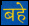
बहे